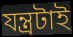
যন্ত্রটাই